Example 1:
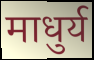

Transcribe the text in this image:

माधुर्य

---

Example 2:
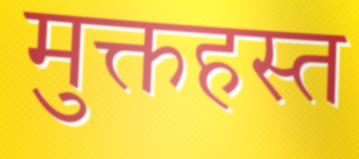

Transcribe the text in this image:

मुक्तहस्त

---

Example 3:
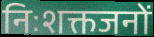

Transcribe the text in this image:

निःशक्तजनों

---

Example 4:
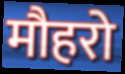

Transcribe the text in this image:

मौहरो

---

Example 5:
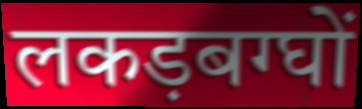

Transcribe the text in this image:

लकड़बग्घों